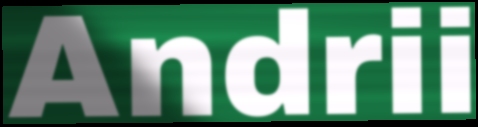
Andrii